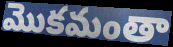
మొకమంతా